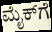
ಮೈಕ್‌ಗೆ